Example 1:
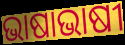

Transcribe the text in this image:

ଭାଷାଭାଷୀ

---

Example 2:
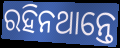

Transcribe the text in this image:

ରହିନଥାନ୍ତେ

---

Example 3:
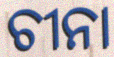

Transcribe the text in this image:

ଚୀନା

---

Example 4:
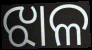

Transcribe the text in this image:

ଝାଳ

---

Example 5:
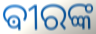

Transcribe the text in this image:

ଵୀରଙ୍କ